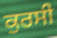
ਕੁਰਸੀ